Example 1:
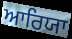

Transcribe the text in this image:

ਆਰਿਯਾ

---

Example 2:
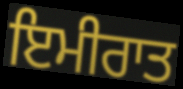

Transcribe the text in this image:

ਇਮੀਰਾਤ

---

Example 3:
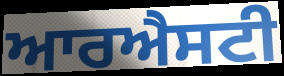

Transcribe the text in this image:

ਆਰਐਸਟੀ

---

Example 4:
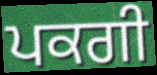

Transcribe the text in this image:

ਪਕਗੀ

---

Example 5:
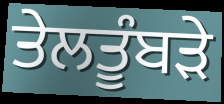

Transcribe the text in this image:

ਤੇਲਤੂੰਬੜੇ